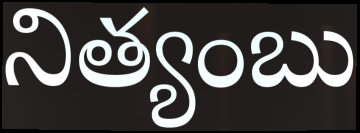
నిత్యంబు